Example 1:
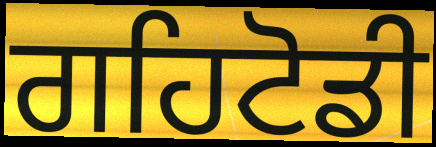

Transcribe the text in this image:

ਗਹਿਟੋਡੀ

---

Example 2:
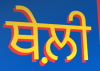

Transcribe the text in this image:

ਥੇਲ਼ੀ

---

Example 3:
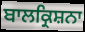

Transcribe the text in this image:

ਬਾਲਕ੍ਰਿਸ਼ਨਾ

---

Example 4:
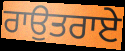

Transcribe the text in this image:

ਰਾਉਤਰਾਏ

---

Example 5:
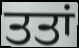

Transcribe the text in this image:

ਤਤਾਂ